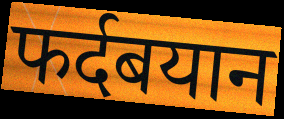
फर्दबयान